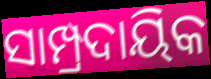
ସାମ୍ପ୍ରଦାୟିକ